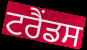
ਟਰੈਂਡਸ